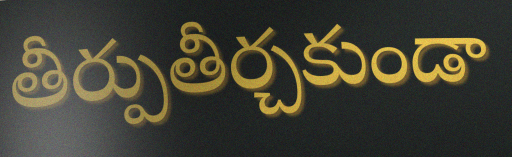
తీర్పుతీర్చకుండా